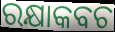
ରକ୍ଷାକବଚ